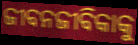
ଜୀବନଜୀବିକାକୁ